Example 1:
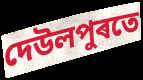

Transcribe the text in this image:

দেউলপুৰতে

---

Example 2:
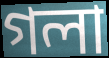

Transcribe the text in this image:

গলা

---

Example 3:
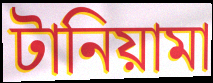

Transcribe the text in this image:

টানিয়ামা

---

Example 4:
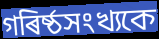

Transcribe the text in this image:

গৰিষ্ঠসংখ্যকে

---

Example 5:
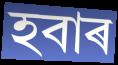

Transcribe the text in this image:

হবাৰ